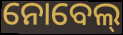
ନୋବେଲ୍